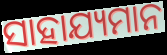
ସାହାଯ୍ୟମାନ